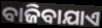
ବାଜିବାଯାଏ